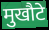
मुखौटे